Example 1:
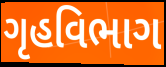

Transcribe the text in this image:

ગૃહવિભાગ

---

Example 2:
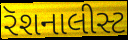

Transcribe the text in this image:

રૅશનાલીસ્ટ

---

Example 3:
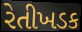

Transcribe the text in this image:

રેતીખડક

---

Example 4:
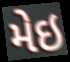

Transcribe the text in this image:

મેઇ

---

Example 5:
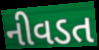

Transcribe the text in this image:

નીવડત